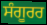
ਸੰਗੂਰਰ